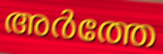
അർത്തേ